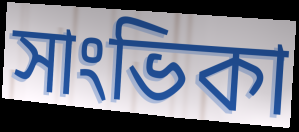
সাংভিকা